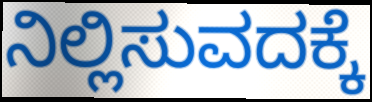
ನಿಲ್ಲಿಸುವದಕ್ಕೆ